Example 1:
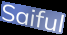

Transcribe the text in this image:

Saiful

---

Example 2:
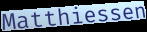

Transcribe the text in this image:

Matthiessen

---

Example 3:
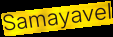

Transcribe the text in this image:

Samayavel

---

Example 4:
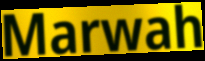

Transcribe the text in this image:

Marwah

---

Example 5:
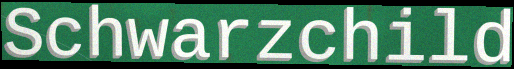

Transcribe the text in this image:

Schwarzchild